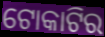
ଟୋକାଟିର